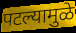
पटल्यामुळे